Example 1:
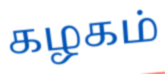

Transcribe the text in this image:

கழகம்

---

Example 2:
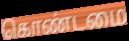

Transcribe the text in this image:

கொண்டமை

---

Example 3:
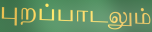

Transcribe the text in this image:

புறப்பாடலும்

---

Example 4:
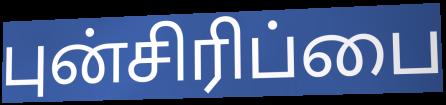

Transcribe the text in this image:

புன்சிரிப்பை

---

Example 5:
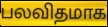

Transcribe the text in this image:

பலவிதமாக